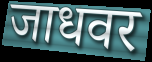
जाधवर